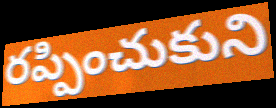
రప్పించుకుని